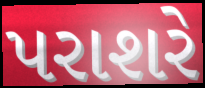
પરાશરે